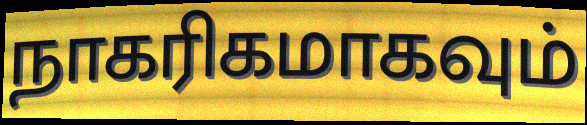
நாகரிகமாகவும்